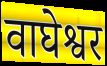
वाघेश्वर